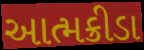
આત્મક્રીડા